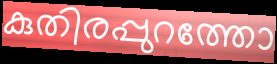
കുതിരപ്പുറത്തോ